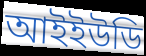
আইইউডি